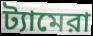
ট্যামেরা